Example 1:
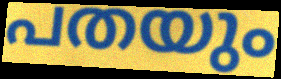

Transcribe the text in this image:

പതയും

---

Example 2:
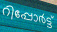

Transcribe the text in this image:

റിപ്പോർട്ട്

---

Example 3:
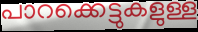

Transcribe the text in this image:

പാറക്കെട്ടുകളുള്ള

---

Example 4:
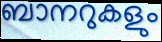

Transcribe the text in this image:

ബാനറുകളും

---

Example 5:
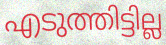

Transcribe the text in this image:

എടുത്തിട്ടില്ല